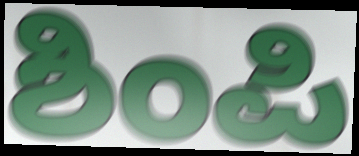
ಶಿಂಪಿ